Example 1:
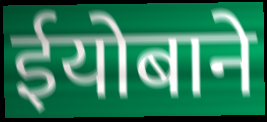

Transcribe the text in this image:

ईयोबाने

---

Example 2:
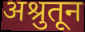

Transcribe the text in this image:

अश्रुतून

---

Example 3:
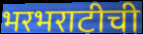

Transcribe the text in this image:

भरभराटीची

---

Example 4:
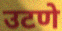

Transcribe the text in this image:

उटणे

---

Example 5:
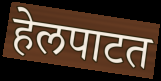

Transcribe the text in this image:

हेलपाटत